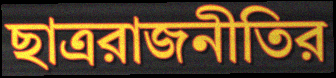
ছাত্ররাজনীতির